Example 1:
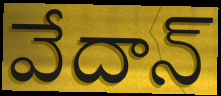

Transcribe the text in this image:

వేదాన్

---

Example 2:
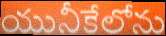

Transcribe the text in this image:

యునీకేలోను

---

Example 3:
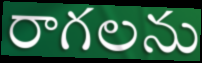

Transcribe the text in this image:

రాగలను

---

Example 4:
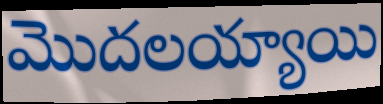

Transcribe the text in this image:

మొదలయ్యాయి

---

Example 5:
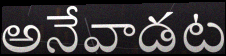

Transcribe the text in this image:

అనేవాడట